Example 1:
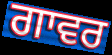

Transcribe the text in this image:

ਗਾਵਰ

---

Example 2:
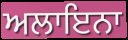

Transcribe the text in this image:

ਅਲਾਇਨਾ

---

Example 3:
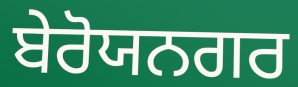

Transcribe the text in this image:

ਬੇਰੋਯਨਗਰ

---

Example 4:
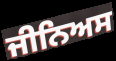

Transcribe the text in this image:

ਜੀਨਿਅਸ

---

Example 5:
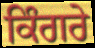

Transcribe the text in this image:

ਕਿੰਗਰੇ